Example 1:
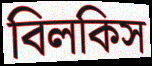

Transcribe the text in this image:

বিলকিস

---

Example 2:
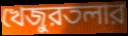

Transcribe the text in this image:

খেজুরতলার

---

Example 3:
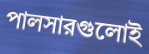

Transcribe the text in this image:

পালসারগুলোই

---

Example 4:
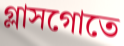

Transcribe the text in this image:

গ্লাসগোতে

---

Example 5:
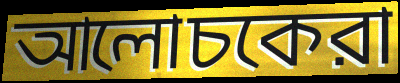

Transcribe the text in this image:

আলোচকেরা